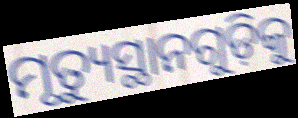
ମୃତ୍ୟୁସ୍ଥାନଗୁଡ଼ିକୁ